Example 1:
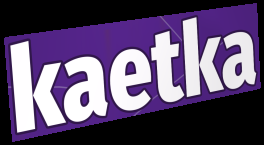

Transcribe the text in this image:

kaetka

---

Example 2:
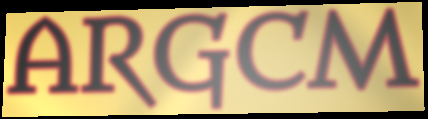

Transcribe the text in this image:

ARGCM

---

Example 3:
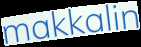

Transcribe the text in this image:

makkalin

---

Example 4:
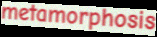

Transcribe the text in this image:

metamorphosis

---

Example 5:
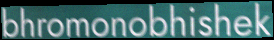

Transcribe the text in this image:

bhromonobhishek